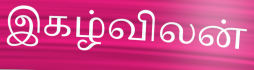
இகழ்விலன்